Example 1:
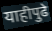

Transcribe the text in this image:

याहीपुढे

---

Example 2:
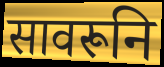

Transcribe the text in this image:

सावरूनि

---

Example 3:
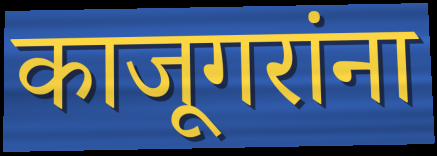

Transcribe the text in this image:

काजूगरांना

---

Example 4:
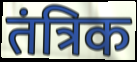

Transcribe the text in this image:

तंत्रिक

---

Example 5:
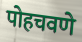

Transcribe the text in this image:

पोहचवणे